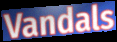
Vandals